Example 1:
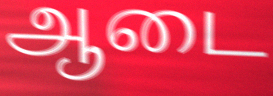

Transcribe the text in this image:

ஆடை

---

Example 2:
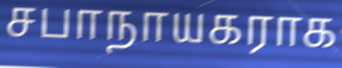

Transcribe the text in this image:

சபாநாயகராக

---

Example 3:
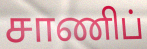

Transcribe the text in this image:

சாணிப்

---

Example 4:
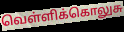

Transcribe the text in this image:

வெள்ளிக்கொலுசு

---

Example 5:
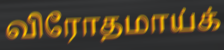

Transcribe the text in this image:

விரோதமாய்க்